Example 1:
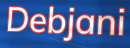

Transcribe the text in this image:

Debjani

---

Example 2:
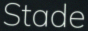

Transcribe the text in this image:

Stade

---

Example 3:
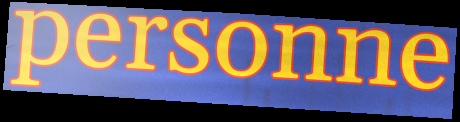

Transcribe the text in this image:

personne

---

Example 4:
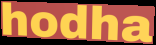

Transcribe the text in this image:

hodha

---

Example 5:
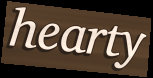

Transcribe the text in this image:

hearty